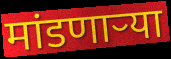
मांडणाऱ्या